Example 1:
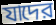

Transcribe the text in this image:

যাদের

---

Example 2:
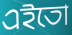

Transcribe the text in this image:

এইতো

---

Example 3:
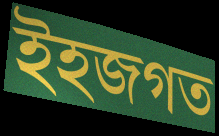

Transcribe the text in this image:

ইহজগত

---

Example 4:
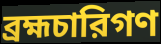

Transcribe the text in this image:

ব্রহ্মচারিগণ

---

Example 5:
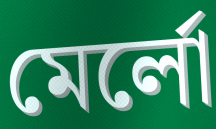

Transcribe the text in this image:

মের্লো